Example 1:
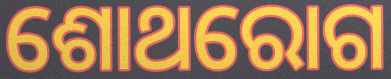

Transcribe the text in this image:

ଶୋଥରୋଗ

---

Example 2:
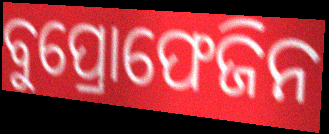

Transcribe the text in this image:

ବୁପ୍ରୋଫେଜିନ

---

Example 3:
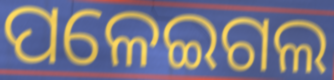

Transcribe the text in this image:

ପଳେଇଗଲ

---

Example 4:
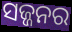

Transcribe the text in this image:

ସଜ୍ଜନର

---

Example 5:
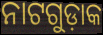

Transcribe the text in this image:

ନାଟଗୁଡ଼ାକ